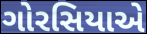
ગોરસિયાએ